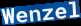
Wenzel